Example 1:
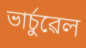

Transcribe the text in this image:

ভাৰ্চুৱেল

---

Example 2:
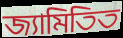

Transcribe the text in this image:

জ্যামিতিত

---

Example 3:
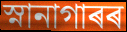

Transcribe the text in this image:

স্নানাগাৰৰ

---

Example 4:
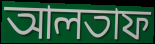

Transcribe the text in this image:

আলতাফ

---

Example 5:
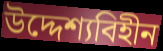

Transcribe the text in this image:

উদ্দেশ্যবিহীন